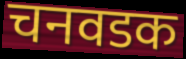
चनवडक